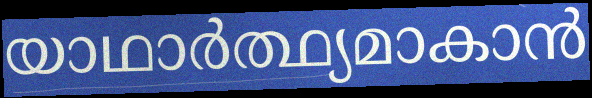
യാഥാർത്ഥ്യമാകാൻ